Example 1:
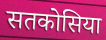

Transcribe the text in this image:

सतकोसिया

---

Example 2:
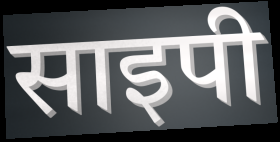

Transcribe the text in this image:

साइपी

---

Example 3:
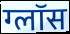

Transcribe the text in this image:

ग्लॉस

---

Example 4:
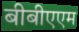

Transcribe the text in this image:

बीबीएएम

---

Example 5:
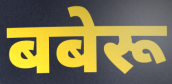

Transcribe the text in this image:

बबेरू